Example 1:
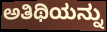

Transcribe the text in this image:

ಅತಿಥಿಯನ್ನು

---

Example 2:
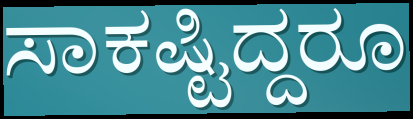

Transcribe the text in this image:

ಸಾಕಷ್ಟಿದ್ದರೂ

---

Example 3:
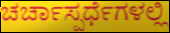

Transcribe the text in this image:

ಚರ್ಚಾಸ್ಪರ್ಧೆಗಳಲ್ಲಿ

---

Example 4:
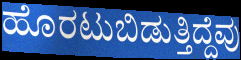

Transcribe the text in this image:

ಹೊರಟುಬಿಡುತ್ತಿದ್ದೆವು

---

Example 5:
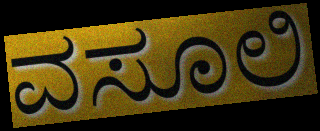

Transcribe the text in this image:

ವಸೂಲಿ